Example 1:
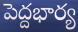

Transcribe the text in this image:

పెద్దభార్య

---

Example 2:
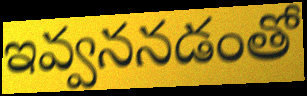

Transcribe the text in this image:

ఇవ్వననడంతో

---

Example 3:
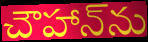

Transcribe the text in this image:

చౌహాన్‌ను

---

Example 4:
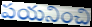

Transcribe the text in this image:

పయనించి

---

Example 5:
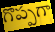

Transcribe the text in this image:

గొప్పగా